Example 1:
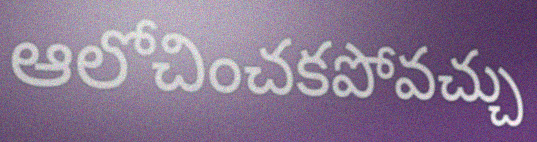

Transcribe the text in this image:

ఆలోచించకపోవచ్చు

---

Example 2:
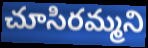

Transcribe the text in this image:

చూసిరమ్మని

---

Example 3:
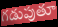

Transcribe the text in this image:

గడుపుతూ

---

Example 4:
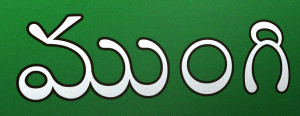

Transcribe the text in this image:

ముంగి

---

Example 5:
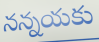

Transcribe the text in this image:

నన్నయకు